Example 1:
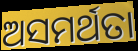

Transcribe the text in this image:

ଅସମର୍ଥତା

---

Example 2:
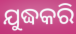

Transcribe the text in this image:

ଯୁଦ୍ଧକରି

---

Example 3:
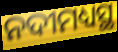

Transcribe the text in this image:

ନଦୀମଧ୍ୟସ୍ଥ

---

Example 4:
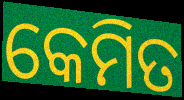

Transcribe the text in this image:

କେମିତ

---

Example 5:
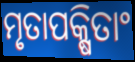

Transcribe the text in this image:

ମୃତାପକ୍ଷିତାଂ